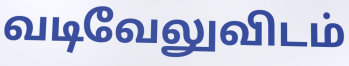
வடிவேலுவிடம்